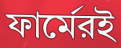
ফার্মেরই